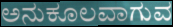
ಅನುಕೂಲವಾಗುವ